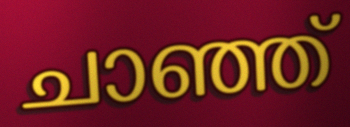
ചാഞ്ഞ്